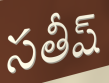
సతీష్